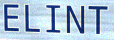
ELINT